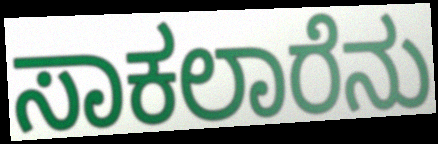
ಸಾಕಲಾರೆನು